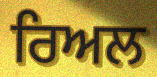
ਰਿਅਲ